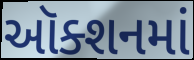
ઑક્શનમાં